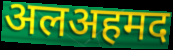
अलअहमद